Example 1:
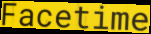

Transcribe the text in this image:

Facetime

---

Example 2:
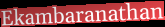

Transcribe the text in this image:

Ekambaranathan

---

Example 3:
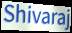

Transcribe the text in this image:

Shivaraj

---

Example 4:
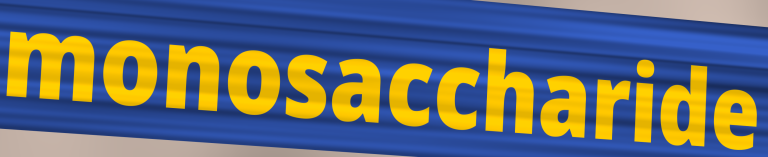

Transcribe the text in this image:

monosaccharide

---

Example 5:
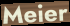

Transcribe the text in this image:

Meier